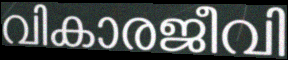
വികാരജീവി